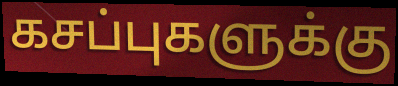
கசப்புகளுக்கு